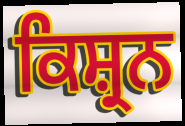
ਕਿਸ਼੍ਰਨ